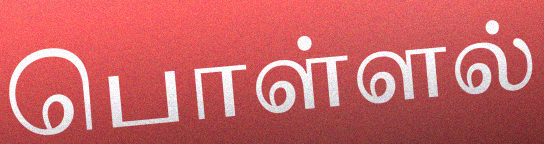
பொள்ளல்